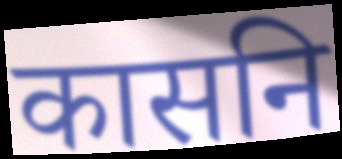
कासनि